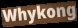
Whykong